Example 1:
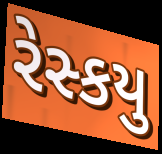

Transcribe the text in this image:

રેસ્કયુ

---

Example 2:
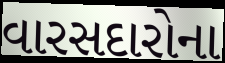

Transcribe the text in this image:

વારસદારોના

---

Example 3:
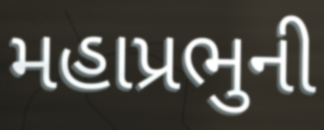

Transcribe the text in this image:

મહાપ્રભુની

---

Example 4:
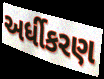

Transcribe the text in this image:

અર્ધીકરણ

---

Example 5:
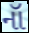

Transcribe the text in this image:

નૉ